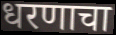
धरणाचा